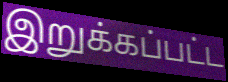
இறுக்கப்பட்ட